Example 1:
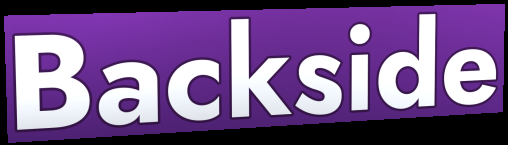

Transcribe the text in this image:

Backside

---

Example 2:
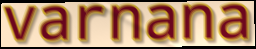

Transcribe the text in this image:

varnana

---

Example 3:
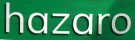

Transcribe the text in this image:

hazaro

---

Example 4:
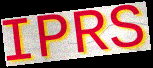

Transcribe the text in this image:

IPRS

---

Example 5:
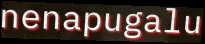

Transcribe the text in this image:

nenapugalu